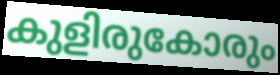
കുളിരുകോരും